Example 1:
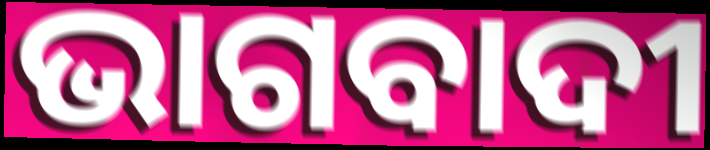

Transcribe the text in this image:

ଭାଗବାଦୀ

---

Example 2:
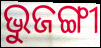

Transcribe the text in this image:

ଭୁଜଙ୍ଗୀ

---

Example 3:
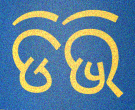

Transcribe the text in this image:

ଡିଭି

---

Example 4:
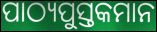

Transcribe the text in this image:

ପାଠ୍ୟପୁସ୍ତକମାନ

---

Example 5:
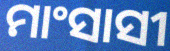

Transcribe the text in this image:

ମାଂସାସୀ